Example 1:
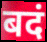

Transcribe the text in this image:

बदं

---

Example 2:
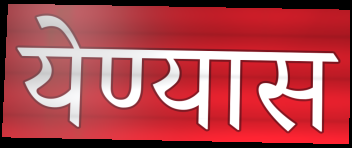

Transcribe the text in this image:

येण्यास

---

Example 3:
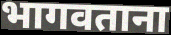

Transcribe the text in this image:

भागवताना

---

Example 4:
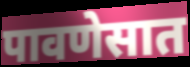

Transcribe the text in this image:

पावणेसात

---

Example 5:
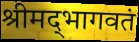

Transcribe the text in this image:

श्रीमद्‌भागवतं